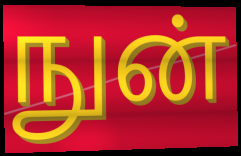
நுன்